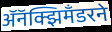
ॲनॅक्झिमँडरने